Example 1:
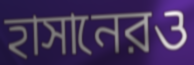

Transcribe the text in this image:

হাসানেরও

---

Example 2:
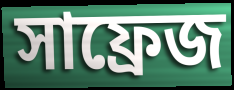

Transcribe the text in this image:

সাফ্রেজ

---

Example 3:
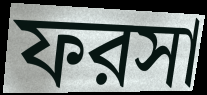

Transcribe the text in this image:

ফরসা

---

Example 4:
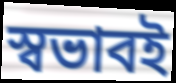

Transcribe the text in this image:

স্বভাবই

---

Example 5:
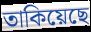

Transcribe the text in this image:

তাকিয়েছে